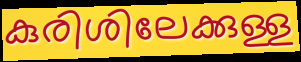
കുരിശിലേക്കുള്ള